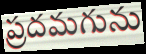
ప్రదమగును